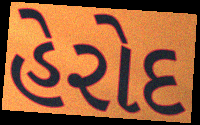
હેરોદ